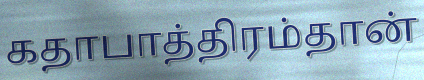
கதாபாத்திரம்தான்